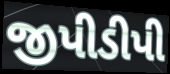
જીપીડીપી